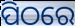
ପିଠରେ